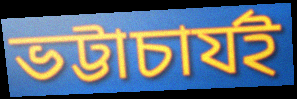
ভট্টাচাৰ্যই